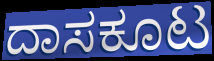
ದಾಸಕೂಟ